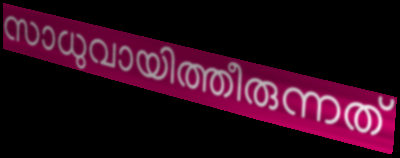
സാധുവായിത്തീരുന്നത്